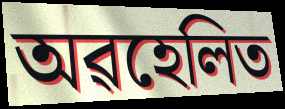
অৱহেলিত